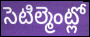
సెటిల్మెంట్లో